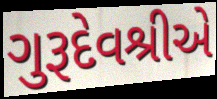
ગુરૂદેવશ્રીએ